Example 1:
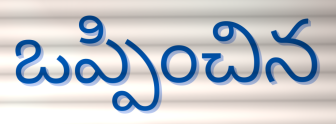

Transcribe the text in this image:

ఒప్పించిన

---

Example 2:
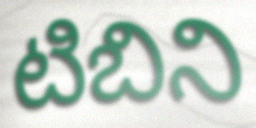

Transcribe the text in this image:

టిబిని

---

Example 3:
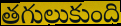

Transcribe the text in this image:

తగులుకుంది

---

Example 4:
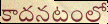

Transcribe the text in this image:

కాదనటంలో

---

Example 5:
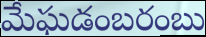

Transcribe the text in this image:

మేఘడంబరంబు